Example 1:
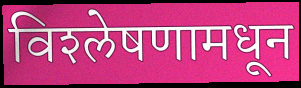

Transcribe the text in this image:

विश्लेषणामधून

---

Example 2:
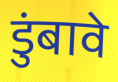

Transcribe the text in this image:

डुंबावे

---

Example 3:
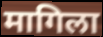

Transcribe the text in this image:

मागिला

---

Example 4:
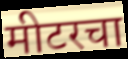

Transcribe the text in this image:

मीटरचा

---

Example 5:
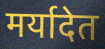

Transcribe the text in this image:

मर्यादेत